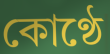
কোণ্ঠে